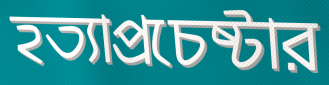
হত্যাপ্রচেষ্টার